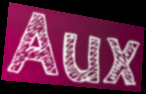
Aux